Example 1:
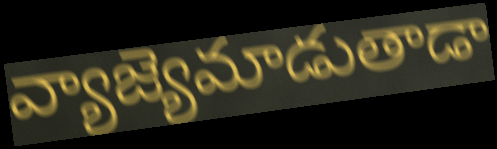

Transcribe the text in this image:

వ్యాజ్యెమాడుతాడా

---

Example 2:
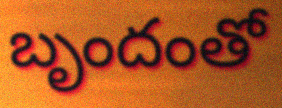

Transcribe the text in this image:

బృందంతో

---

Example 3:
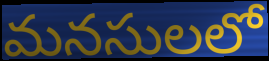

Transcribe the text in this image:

మనసులలో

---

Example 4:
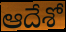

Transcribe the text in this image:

ఆదేశో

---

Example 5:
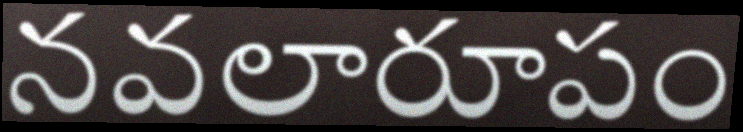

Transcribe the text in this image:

నవలారూపం